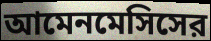
আমেনমেসিসের